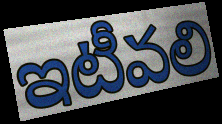
ఇటీవలి